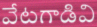
వేటగాడివి